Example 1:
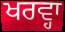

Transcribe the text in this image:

ਖਰਵ੍ਹਾ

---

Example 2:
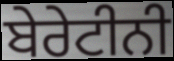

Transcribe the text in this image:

ਬੇਰੇਟੀਨੀ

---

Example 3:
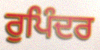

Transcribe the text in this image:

ਰੁਪਿੰਦਰ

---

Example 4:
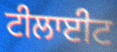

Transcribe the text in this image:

ਟੀਲਾਈਟ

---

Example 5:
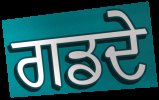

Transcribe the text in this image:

ਗਡਦੇ